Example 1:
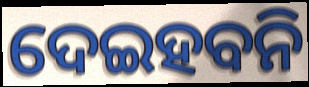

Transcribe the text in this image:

ଦେଇହବନି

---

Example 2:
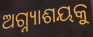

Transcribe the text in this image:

ଅଗ୍ନ୍ୟାଶୟକୁ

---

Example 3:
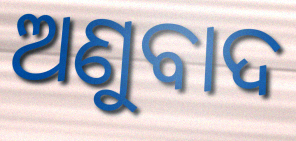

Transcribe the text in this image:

ଅଣୁବାଦ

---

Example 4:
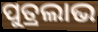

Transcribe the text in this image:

ପୁତ୍ରଲାଭ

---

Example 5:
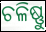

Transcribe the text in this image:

ଚଳିଷ୍ଣୁ